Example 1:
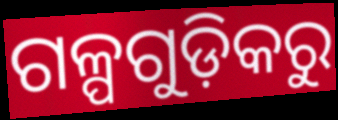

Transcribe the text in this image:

ଗଳ୍ପଗୁଡ଼ିକରୁ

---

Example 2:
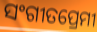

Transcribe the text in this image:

ସଂଗୀତପ୍ରେମୀ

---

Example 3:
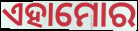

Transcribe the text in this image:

ଏହାମୋର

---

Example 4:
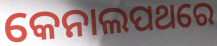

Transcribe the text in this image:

କେନାଲପଥରେ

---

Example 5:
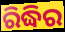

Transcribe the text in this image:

ରିଦ୍ଧିର